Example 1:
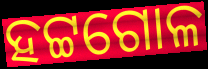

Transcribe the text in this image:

ହଟ୍ଟଗୋଳ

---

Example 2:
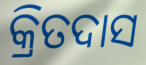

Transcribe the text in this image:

କ୍ରିତଦାସ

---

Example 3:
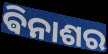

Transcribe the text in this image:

ଵିନାଶର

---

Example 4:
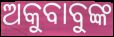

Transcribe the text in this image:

ଅକୁବାବୁଙ୍କ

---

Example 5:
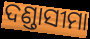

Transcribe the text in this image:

ଦଣ୍ଡାସୀମା